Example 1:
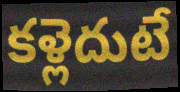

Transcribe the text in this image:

కళ్లెదుటే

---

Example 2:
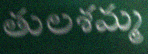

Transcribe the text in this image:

తులశమ్మ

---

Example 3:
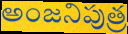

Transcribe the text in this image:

అంజనిపుత్ర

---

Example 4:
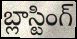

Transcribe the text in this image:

బ్లాస్టింగ్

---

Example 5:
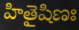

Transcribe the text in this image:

హితైషిణః